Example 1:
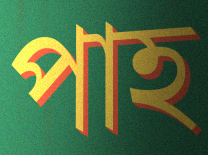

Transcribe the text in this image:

পাহ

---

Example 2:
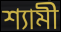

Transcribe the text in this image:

শ্যামী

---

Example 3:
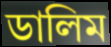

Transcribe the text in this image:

ডালিম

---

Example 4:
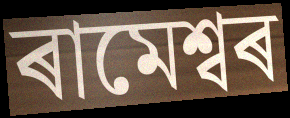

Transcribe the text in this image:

ৰামেশ্বৰ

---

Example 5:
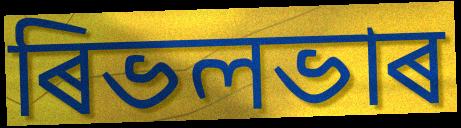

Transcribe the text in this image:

ৰিভলভাৰ